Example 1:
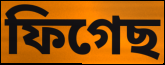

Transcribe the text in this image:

ফিগেছ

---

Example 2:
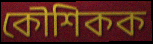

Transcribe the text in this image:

কৌশিকক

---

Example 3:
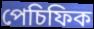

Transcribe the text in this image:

পেচিফিক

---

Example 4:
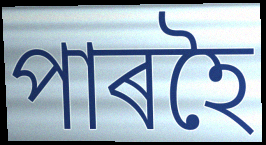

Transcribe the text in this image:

পাৰহৈ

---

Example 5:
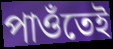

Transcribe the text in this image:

পাওঁতেই